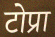
टोप्रा